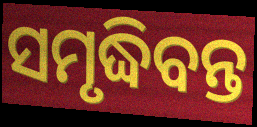
ସମୃଦ୍ଧିବନ୍ତ